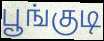
பூங்குடி